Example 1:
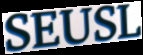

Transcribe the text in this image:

SEUSL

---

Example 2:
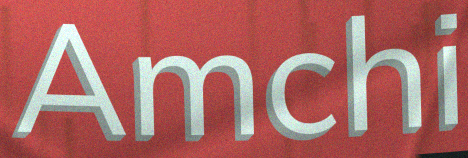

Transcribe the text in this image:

Amchi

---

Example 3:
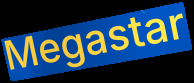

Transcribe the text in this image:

Megastar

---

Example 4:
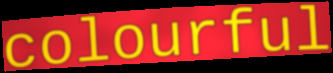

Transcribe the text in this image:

colourful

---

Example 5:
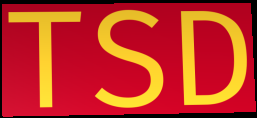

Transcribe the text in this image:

TSD